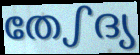
തേഽദ്യ